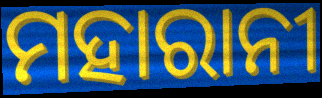
ମହାରାନୀ